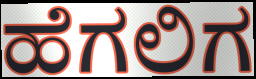
ಹೆಗಲಿಗ